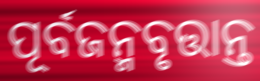
ପୂର୍ବଜନ୍ମବୃତ୍ତାନ୍ତ